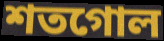
শতগোল